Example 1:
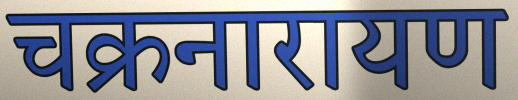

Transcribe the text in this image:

चक्रनारायण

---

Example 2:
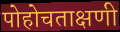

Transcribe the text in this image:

पोहोचताक्षणी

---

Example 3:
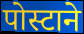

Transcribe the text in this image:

पोस्टाने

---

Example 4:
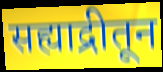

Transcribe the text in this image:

सह्याद्रीतून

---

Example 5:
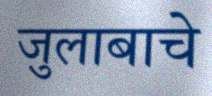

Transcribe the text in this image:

जुलाबाचे